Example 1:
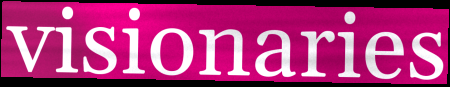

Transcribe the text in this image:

visionaries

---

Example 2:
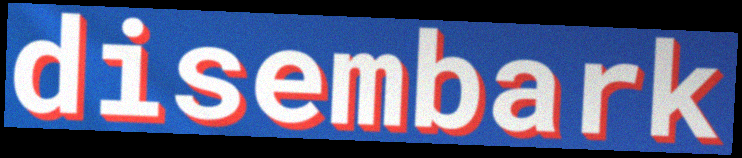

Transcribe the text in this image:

disembark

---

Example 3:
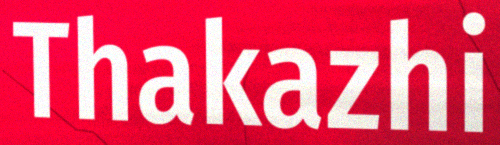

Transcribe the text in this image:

Thakazhi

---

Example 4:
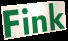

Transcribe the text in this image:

Fink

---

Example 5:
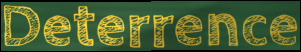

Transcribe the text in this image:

Deterrence